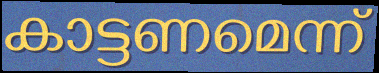
കാട്ടണമെന്ന്